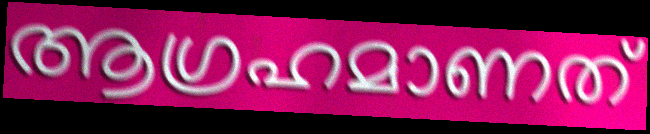
ആഗ്രഹമാണത്